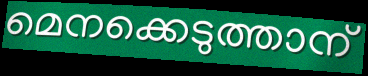
മെനക്കെടുത്താന്